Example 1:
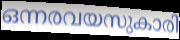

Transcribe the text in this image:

ഒന്നരവയസുകാരി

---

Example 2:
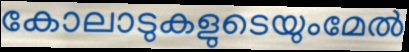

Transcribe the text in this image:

കോലാടുകളുടെയുംമേൽ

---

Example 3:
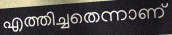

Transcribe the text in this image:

എത്തിച്ചതെന്നാണ്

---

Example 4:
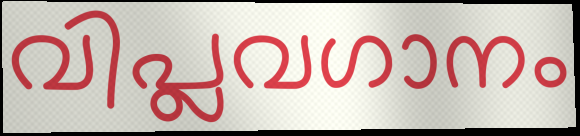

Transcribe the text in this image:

വിപ്ലവഗാനം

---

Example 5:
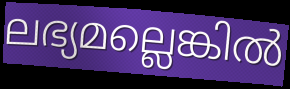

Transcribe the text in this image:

ലഭ്യമല്ലെങ്കിൽ